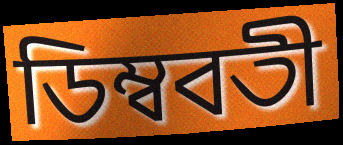
ডিম্ববতী